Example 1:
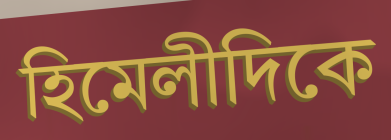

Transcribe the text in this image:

হিমেলীদিকে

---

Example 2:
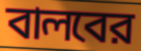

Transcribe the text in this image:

বালবের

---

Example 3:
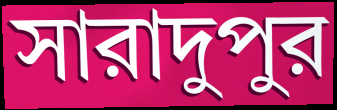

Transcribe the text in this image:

সারাদুপুর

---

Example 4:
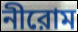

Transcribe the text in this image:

নীরোম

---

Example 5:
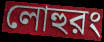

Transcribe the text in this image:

লোহুরং